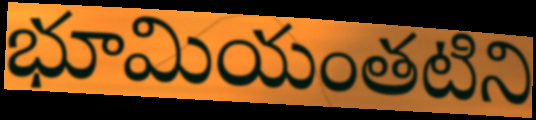
భూమియంతటిని